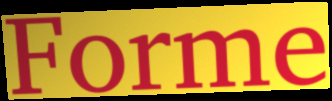
Forme